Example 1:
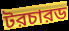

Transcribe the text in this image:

টরচারড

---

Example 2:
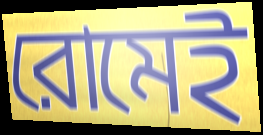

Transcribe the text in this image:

রোমেই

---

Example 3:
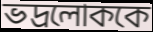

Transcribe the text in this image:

ভদ্রলোককে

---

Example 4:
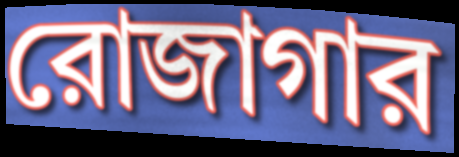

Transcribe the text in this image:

রোজাগার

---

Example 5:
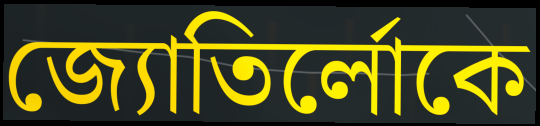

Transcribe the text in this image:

জ্যোতির্লোকে